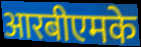
आरबीएमके